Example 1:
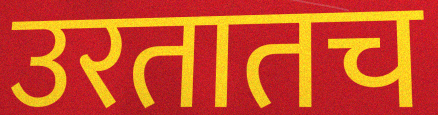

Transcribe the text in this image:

उरतातच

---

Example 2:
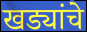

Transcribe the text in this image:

खड्यांचे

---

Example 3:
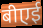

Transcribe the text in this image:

बीएई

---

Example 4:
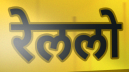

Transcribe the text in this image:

रेललो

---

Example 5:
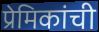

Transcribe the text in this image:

प्रेमिकांची